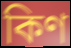
কিণ